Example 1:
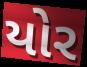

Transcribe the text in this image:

યોર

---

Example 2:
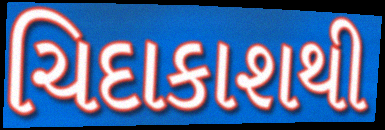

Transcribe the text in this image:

ચિદાકાશથી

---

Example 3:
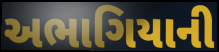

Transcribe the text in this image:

અભાગિયાની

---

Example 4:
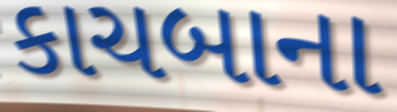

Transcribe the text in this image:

કાચબાના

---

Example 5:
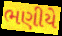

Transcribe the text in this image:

ભણીયે